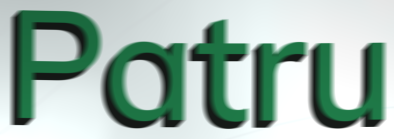
Patru